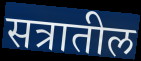
सत्रातील